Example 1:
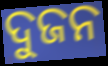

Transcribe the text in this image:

ଦୁଜନ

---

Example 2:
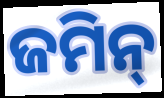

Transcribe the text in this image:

ଜମିନ୍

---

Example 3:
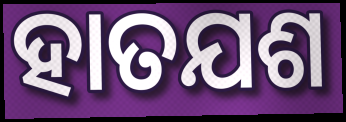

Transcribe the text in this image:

ହାତଯଶ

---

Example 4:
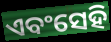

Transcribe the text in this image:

ଏବଂସେହି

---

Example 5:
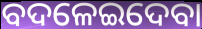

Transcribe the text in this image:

ବଦଳେଇଦେବା